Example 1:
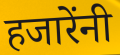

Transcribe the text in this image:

हजारेंनी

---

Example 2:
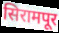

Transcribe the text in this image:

सिरामपूर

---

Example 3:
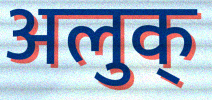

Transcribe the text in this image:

अलुक्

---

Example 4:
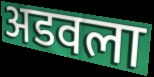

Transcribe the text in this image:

अडवला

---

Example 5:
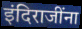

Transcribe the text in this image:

इंदिराजींना